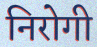
निरोगी